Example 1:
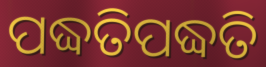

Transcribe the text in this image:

ପଦ୍ଧତିପଦ୍ଧତି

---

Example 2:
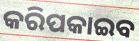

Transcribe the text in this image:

କରିପକାଇବ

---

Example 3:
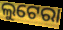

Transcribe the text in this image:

ଲୁଟେରା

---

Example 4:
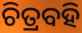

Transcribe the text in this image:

ଚିତ୍ରବହି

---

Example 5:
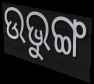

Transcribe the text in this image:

ଉଭୁଙ୍ଗ